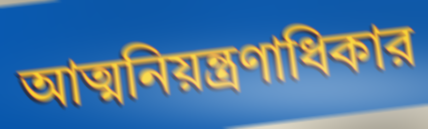
আত্মনিয়ন্ত্রণাধিকার